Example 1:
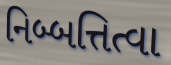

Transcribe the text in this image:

નિબ્બત્તિત્વા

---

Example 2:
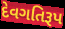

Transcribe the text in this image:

દેવગતિરૂપ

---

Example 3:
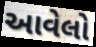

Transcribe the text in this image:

આવેલો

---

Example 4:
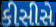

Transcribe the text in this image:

કીસીસે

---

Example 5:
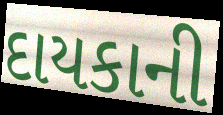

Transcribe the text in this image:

દાયકાની